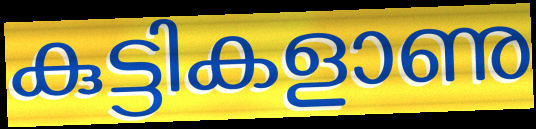
കുട്ടികളാണു